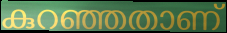
കുറഞ്ഞതാണ്